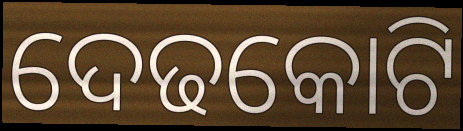
ଦେଢକୋଟି